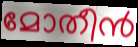
മോതീൻ